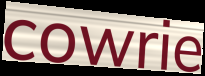
cowrie